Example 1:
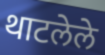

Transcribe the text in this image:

थाटलेले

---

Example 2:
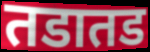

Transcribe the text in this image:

तडातड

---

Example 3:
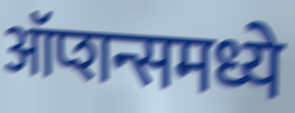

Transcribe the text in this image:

ऑप्शन्समध्ये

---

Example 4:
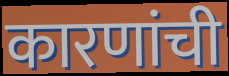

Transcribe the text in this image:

कारणांची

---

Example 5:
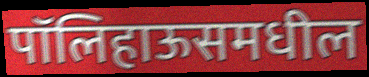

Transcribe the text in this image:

पॉलिहाऊसमधील